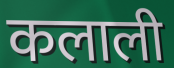
कलाली